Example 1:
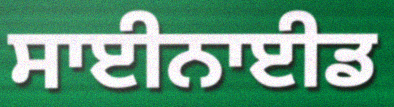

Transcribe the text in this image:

ਸਾਈਨਾਈਡ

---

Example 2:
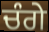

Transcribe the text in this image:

ਚੰਗੇ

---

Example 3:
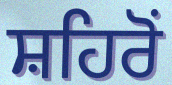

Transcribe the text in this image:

ਸ਼ਹਿਰੋਂ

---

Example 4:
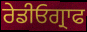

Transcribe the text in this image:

ਰੇਡੀਓਗ੍ਰਾਫ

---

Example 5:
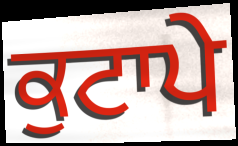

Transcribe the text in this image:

ਕੁਟਾਪੇ